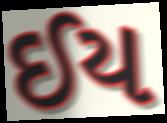
ઈય